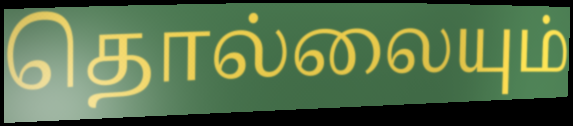
தொல்லையும்